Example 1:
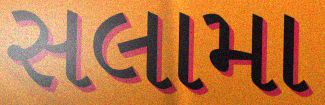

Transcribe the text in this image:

સલામા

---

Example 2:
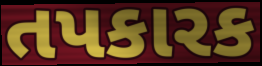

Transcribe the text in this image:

તપકારક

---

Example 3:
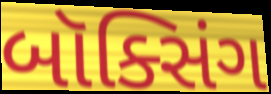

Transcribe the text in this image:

બૉક્સિંગ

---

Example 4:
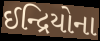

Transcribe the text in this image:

ઈન્દ્રિયોના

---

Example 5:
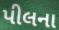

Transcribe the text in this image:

પીલના